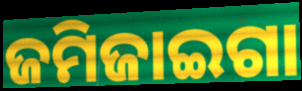
ଜମିଜାଇଗା